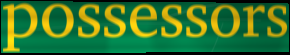
possessors